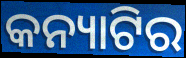
କନ୍ୟାଟିର